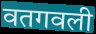
वतगवली